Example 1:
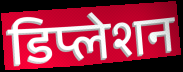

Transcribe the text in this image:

डिप्लेशन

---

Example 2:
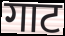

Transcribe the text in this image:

गाट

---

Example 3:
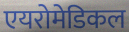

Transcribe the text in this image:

एयरोमेडिकल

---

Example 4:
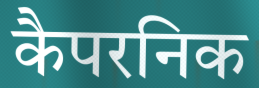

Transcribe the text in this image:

कैपरनिक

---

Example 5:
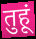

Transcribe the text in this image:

तुहूं